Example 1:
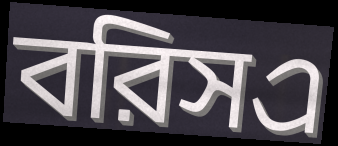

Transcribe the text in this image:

বরিসএ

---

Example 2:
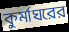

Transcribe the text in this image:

কুর্মাঘরের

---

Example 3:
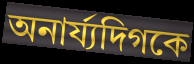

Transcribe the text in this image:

অনার্য্যদিগকে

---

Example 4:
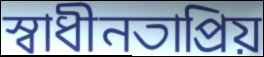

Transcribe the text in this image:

স্বাধীনতাপ্রিয়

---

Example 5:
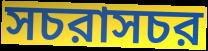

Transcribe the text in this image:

সচরাসচর